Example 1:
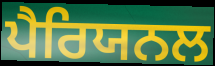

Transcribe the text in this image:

ਪੈਰਿਯਨਲ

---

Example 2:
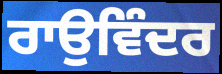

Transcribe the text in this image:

ਰਾਉਵਿੰਦਰ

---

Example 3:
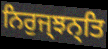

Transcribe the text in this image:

ਨਿਰੁਜ੍ਝਨ੍ਤਿ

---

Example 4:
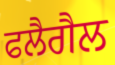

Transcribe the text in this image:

ਫਲੈਗੈਲ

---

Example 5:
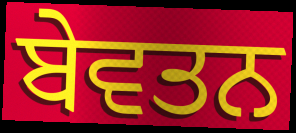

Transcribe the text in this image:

ਬੇਵਤਨ